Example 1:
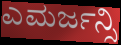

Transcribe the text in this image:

ಎಮರ್ಜನ್ಸಿ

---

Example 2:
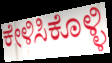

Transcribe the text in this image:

ಕೇಳಿಸಿಕೊಳ್ಳಿ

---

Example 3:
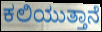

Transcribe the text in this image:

ಕಲಿಯುತ್ತಾನೆ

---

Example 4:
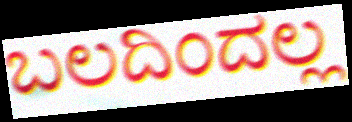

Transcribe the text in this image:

ಬಲದಿಂದಲ್ಲ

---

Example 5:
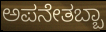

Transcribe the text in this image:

ಅಪನೇತಬ್ಬಾ